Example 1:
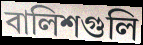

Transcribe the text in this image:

বালিশগুলি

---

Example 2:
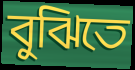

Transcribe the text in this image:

বুঝিতে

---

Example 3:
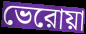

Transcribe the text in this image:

ভেরোয়া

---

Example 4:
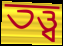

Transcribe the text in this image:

তত্ত্ব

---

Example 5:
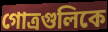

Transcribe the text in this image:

গোত্রগুলিকে